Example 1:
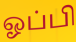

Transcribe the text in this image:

ஓப்பி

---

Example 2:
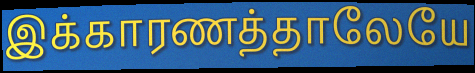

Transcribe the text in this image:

இக்காரணத்தாலேயே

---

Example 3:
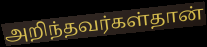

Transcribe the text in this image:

அறிந்தவர்கள்தான்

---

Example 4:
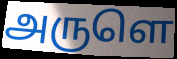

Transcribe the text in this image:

அருளெ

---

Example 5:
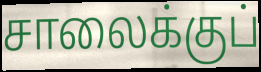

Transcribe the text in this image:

சாலைக்குப்